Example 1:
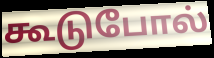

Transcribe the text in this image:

கூடுபோல்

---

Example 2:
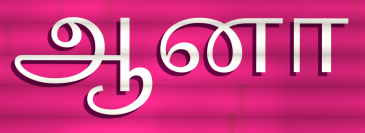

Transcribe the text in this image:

ஆனா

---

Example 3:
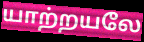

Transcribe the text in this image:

யாற்றயலே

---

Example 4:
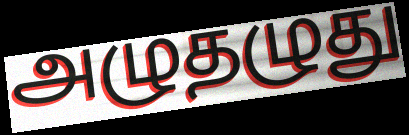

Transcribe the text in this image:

அழுதழுது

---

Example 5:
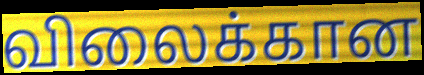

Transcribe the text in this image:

விலைக்கான